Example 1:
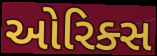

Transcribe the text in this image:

ઓરિક્સ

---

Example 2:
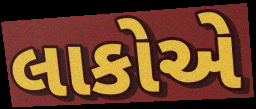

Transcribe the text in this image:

લાકોએ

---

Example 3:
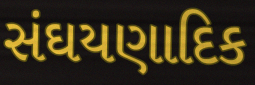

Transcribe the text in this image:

સંઘયણાદિક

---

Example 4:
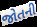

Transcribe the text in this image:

જોતની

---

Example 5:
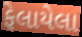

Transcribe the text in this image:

ફેલાયેલા